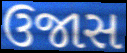
ઉજાસ